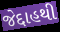
જેદ્દાહથી